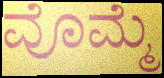
ವೊಮ್ಮೆ